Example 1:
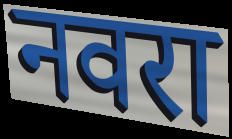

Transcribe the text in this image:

नवरा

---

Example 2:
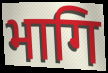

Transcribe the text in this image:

भागि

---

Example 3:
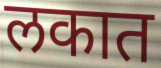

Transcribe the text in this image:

लकात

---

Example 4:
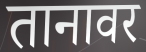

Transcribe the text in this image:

तानावर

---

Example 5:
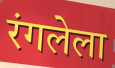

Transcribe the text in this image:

रंगलेला